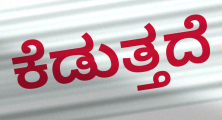
ಕೆಡುತ್ತದೆ